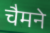
चैमने